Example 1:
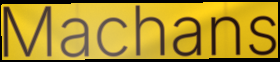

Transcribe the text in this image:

Machans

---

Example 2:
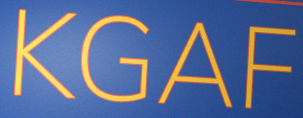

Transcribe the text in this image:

KGAF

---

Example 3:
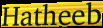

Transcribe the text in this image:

Hatheeb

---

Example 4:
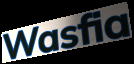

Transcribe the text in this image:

Wasfia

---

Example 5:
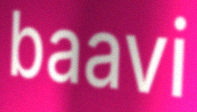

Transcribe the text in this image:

baavi